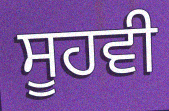
ਸੂਹਵੀ